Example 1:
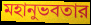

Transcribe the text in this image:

মহানুভবতার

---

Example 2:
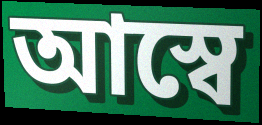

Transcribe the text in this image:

আস্বে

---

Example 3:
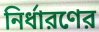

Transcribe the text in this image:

নির্ধারণের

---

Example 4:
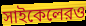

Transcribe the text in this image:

সাইকেলেরও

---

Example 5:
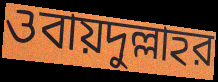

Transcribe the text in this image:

ওবায়দুল্লাহর